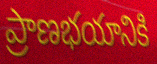
ప్రాణభయానికి